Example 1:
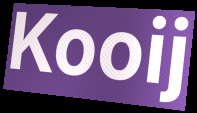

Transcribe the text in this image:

Kooij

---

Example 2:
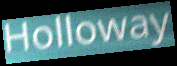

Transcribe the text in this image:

Holloway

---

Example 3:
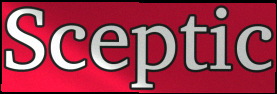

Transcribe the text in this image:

Sceptic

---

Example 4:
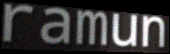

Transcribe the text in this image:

ramun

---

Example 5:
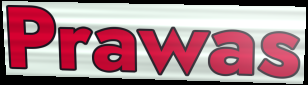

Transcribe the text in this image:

Prawas